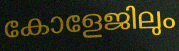
കോളേജിലും